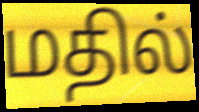
மதில்